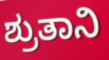
ಶ್ರುತಾನಿ